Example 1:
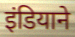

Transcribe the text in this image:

इंडियाने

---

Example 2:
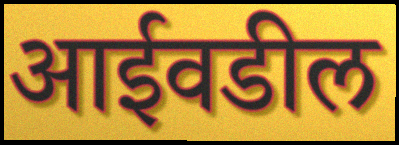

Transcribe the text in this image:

आईवडील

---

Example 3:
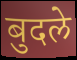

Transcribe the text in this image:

बुदले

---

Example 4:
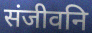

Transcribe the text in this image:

संजीवनि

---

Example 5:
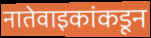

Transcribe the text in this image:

नातेवाइकांकडून